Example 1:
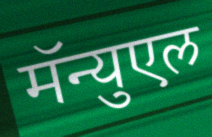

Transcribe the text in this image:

मॅन्युएल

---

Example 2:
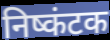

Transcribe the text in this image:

निष्कंटक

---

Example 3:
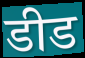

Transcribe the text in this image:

डीड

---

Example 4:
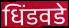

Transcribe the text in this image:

धिंडवडे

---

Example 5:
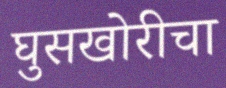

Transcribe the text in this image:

घुसखोरीचा